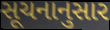
સૂચનાનુસાર